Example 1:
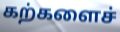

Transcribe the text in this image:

கற்களைச்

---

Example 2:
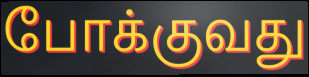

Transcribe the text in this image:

போக்குவது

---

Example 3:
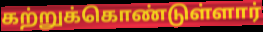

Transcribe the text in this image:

கற்றுக்கொண்டுள்ளார்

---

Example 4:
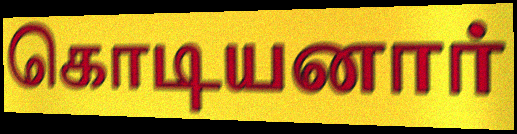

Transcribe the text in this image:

கொடியனார்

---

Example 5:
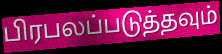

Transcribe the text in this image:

பிரபலப்படுத்தவும்